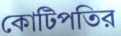
কোটিপতির